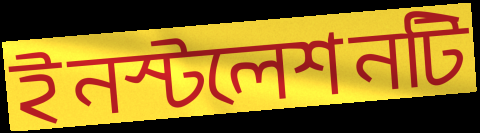
ইনস্টলেশনটি